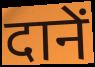
दानें